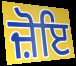
ਜ਼ੋਇ